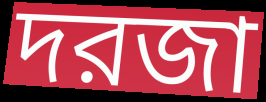
দরজা